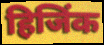
हिजिंक